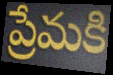
ప్రేమకి